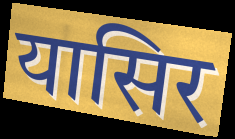
यासिर